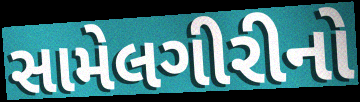
સામેલગીરીનો